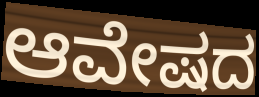
ಆವೇಷದ